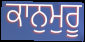
ਕਾਨੁਮੁਰੂ